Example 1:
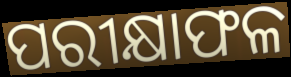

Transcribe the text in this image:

ପରୀକ୍ଷାଫଳ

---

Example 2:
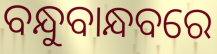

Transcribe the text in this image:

ବନ୍ଧୁବାନ୍ଧବରେ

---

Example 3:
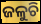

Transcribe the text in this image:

ଜଳୁଚି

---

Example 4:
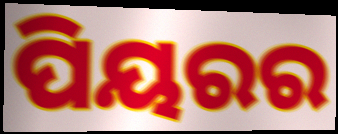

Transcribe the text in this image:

ପିୟରର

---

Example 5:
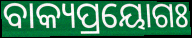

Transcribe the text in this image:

ବାକ୍ୟପ୍ରୟୋଗଃ